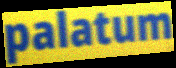
palatum